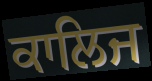
ਕਾਲਿਜ